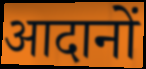
आदानों